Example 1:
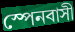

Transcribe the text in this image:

স্পেনবাসী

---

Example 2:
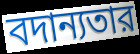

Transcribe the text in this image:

বদান্যতার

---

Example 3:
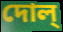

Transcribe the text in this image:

দোল্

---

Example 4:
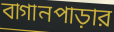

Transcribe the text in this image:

বাগানপাড়ার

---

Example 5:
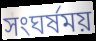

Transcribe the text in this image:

সংঘর্ষময়